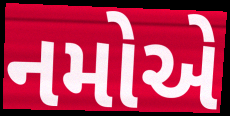
નમોએ